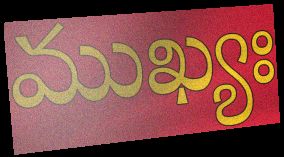
ముఖ్యః